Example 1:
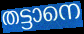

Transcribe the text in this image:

തട്ടാനെ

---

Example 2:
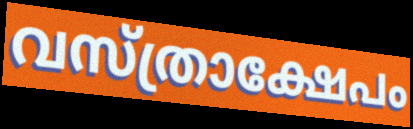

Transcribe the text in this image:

വസ്ത്രാക്ഷേപം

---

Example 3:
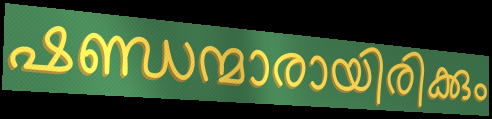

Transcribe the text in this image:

ഷണ്ഡന്മാരായിരിക്കും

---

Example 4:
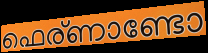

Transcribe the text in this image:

ഫെര്ണാണ്ടോ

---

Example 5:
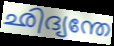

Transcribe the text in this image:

ഛിദ്യന്തേ